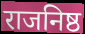
राजनिष्ठ